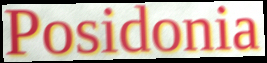
Posidonia